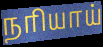
நரியாய்